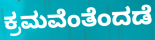
ಕ್ರಮವೆಂತೆಂದಡೆ